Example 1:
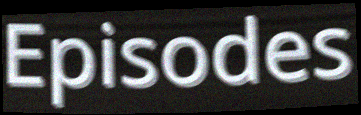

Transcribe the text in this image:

Episodes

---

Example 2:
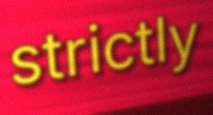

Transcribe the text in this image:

strictly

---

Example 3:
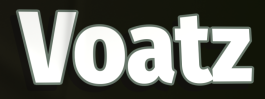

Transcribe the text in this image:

Voatz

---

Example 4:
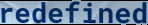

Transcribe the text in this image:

redefined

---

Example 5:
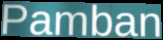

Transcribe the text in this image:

Pamban